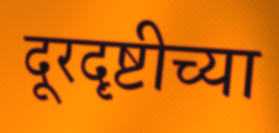
दूरदृष्टीच्या